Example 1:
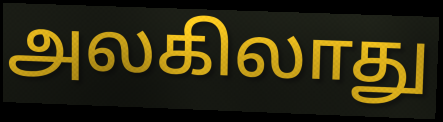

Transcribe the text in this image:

அலகிலாது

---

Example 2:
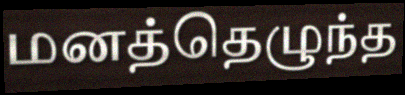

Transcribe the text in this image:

மனத்தெழுந்த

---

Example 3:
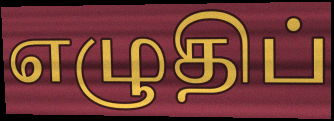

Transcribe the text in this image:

எழுதிப்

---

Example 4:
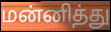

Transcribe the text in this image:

மன்னித்து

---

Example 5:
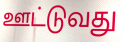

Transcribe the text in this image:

ஊட்டுவது